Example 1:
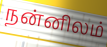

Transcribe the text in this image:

நன்னிலம்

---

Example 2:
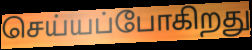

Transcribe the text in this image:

செய்யப்போகிறது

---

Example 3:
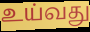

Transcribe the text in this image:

உய்வது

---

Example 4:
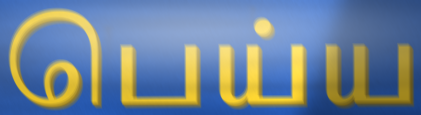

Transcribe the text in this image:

பெய்ய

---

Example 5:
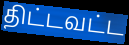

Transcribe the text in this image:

திட்டவட்ட